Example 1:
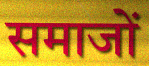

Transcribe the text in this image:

समाजों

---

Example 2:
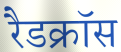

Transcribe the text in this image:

रैडक्रॉस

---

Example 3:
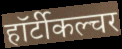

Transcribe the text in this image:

हॉर्टीकल्चर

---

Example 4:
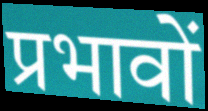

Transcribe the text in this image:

प्रभावों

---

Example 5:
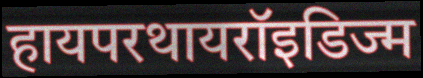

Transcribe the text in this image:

हायपरथायरॉइडिज्म